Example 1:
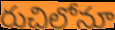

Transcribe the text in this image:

రుచిలోనూ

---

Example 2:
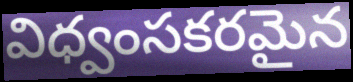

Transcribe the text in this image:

విధ్వంసకరమైన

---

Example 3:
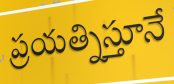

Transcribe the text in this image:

ప్రయత్నిస్తూనే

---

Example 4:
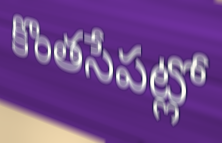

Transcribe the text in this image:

కొంతసేపట్లో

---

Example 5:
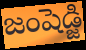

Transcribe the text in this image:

జంషెడ్జి